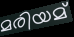
മരിയമ്